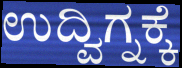
ಉದ್ವಿಗ್ನಕ್ಕೆ